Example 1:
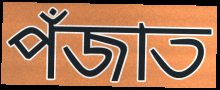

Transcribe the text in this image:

পঁজাত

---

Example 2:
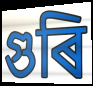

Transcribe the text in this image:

গুৰি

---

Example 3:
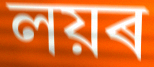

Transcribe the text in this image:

লয়ৰ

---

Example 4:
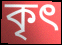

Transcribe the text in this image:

কৃৎ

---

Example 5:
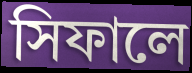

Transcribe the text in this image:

সিফালে